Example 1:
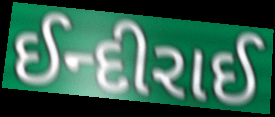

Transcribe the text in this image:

ઈન્દીરાઈ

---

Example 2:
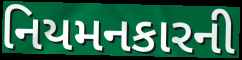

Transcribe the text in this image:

નિયમનકારની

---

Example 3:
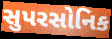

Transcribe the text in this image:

સુપરસોનિક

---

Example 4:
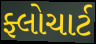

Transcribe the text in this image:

ફ્લોચાર્ટ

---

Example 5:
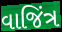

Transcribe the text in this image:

વાજિંત્ર